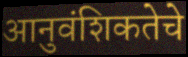
आनुवंशिकतेचे